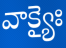
వాక్యైః